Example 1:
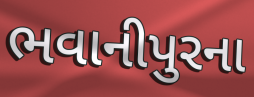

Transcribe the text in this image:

ભવાનીપુરના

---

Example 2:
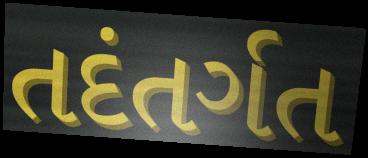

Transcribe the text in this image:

તદંતર્ગત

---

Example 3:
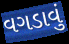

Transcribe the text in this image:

વગડાવું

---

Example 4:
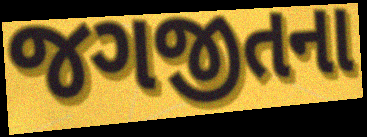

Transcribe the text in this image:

જગજીતના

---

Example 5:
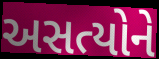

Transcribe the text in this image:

અસત્યોને